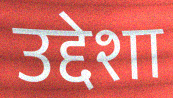
उद्देशा